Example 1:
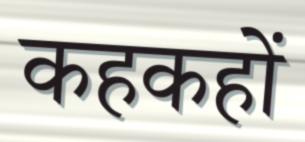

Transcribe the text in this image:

कहकहों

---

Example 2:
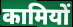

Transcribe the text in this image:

कामियों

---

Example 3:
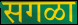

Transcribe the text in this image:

सगळा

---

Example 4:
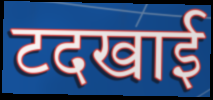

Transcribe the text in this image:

टदखाई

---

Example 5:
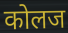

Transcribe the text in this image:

कोलज